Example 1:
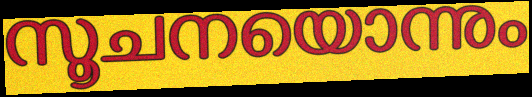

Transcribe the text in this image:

സൂചനയൊന്നും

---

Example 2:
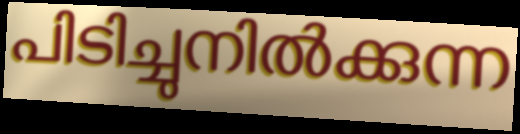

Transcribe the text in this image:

പിടിച്ചുനിൽക്കുന്ന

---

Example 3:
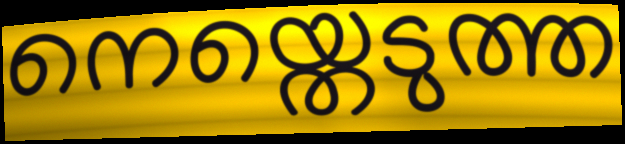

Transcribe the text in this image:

നെയ്തെടുത്ത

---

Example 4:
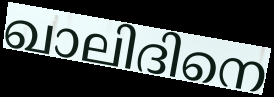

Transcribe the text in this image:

ഖാലിദിനെ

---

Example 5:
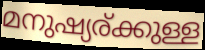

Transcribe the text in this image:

മനുഷ്യര്ക്കുള്ള